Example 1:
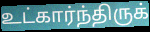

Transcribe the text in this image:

உட்கார்ந்திருக்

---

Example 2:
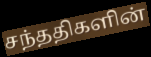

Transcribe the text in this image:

சந்ததிகளின்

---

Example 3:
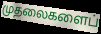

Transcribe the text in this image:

முதலைகளைப்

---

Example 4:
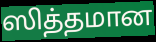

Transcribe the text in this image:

ஸித்தமான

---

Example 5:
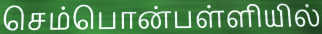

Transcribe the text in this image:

செம்பொன்பள்ளியில்